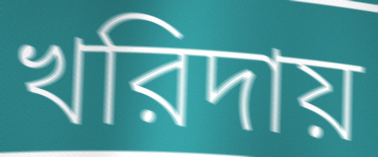
খরিদায়